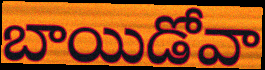
బాయిడోవా